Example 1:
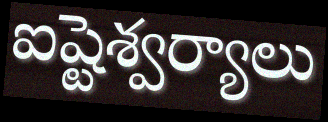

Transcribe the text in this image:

ఐష్టెశ్వర్యాలు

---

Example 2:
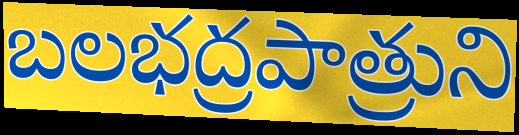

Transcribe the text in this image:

బలభద్రపాత్రుని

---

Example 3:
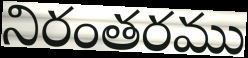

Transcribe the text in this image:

నిరంతరము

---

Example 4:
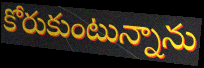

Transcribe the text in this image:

కోరుకుంటున్నాను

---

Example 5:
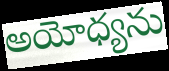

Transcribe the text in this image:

అయోధ్యను